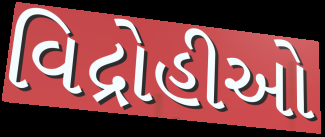
વિદ્રોહીઓ